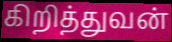
கிறித்துவன்